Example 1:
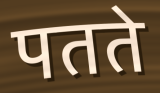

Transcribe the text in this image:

पतते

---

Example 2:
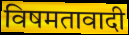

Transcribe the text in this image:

विषमतावादी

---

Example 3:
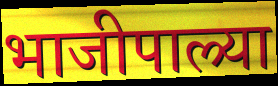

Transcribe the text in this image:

भाजीपाल्या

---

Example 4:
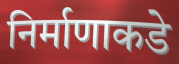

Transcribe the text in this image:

निर्माणाकडे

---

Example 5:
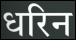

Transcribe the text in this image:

धरिन